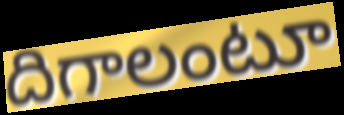
దిగాలంటూ